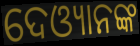
ଦେଓ୍ୟାନଙ୍କ